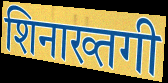
शिनाख्तगी